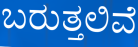
ಬರುತ್ತಲಿವೆ